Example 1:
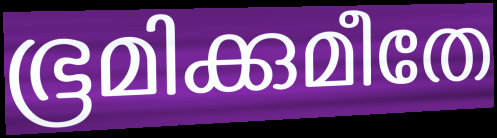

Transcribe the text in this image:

ഭൂമിക്കുമീതേ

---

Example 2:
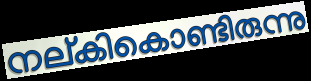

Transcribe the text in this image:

നല്കികൊണ്ടിരുന്നു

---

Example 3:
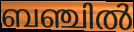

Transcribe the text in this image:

ബഞ്ചിൽ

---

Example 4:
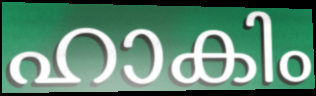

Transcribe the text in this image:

ഹാകിം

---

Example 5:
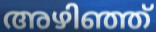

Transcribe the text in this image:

അഴിഞ്ഞ്